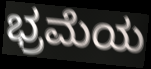
ಭ್ರಮೆಯ